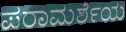
ಪರಾಮರ್ಶೆಯ